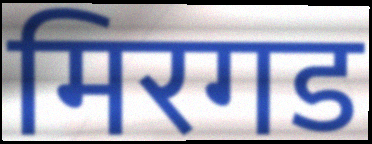
मिरगड